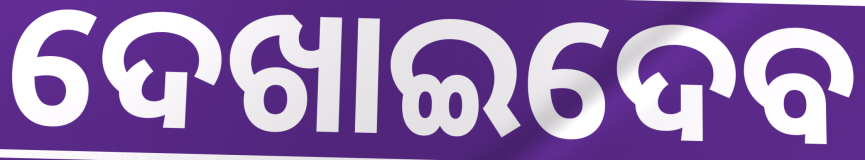
ଦେଖାଇଦେବ